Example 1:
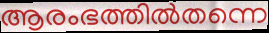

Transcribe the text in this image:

ആരംഭത്തിൽതന്നെ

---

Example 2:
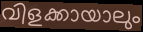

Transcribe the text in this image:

വിളക്കായാലും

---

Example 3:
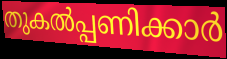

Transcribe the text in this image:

തുകൽപ്പണിക്കാർ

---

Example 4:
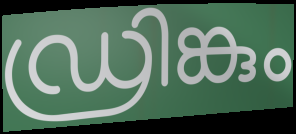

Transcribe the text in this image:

ഡ്രിങ്കും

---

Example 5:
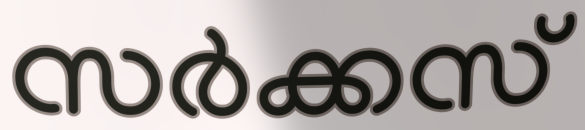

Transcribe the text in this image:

സർക്കസ്